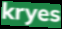
kryes